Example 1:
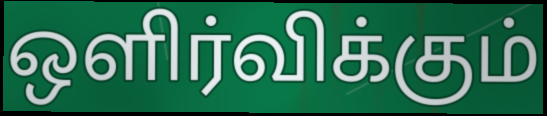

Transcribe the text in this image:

ஒளிர்விக்கும்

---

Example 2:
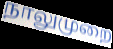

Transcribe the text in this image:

நாலுமுறை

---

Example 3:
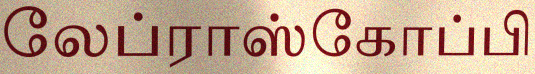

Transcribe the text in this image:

லேப்ராஸ்கோப்பி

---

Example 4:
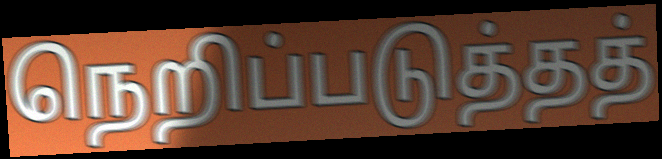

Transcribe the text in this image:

நெறிப்படுத்தத்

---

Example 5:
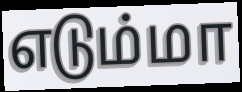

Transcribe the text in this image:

எடும்மா